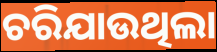
ଚରିଯାଉଥିଲା